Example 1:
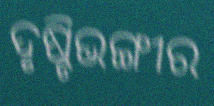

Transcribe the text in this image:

ଦୃଷ୍ଚିଭଙ୍ଗୀର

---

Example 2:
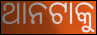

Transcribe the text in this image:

ଥାନଟାକୁ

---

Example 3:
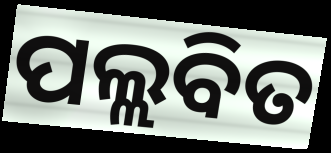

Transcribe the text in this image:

ପଲ୍ଲବିତ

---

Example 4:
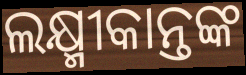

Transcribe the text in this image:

ଲକ୍ଷ୍ମୀକାନ୍ତଙ୍କ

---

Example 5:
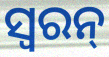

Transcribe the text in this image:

ସ୍ୱରନ୍